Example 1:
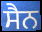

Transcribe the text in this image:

ਸੈਨ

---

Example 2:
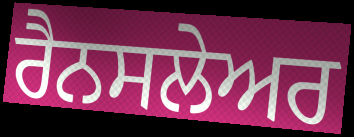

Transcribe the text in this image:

ਰੈਨਸਲੇਅਰ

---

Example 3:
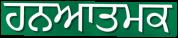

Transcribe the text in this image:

ਹਨਆਤਮਕ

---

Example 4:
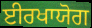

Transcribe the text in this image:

ਈਰਖਾਯੋਗ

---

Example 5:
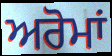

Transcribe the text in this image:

ਅਰੋਮਾਂ